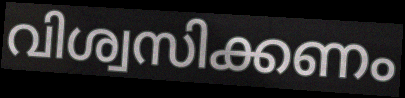
വിശ്വസിക്കണം